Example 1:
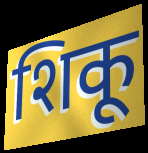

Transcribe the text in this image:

शिकू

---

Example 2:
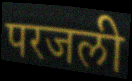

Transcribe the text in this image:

परजली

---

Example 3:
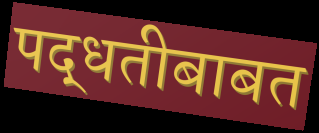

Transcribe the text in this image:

पद्धतीबाबत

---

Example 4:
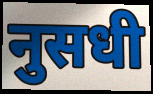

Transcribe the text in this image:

नुसधी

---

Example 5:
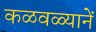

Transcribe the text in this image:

कळवळ्यानें